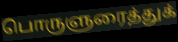
பொருளுரைத்துக்